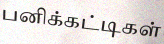
பனிக்கட்டிகள்